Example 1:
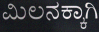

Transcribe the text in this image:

ಮಿಲನಕ್ಕಾಗಿ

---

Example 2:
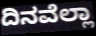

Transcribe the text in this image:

ದಿನವೆಲ್ಲಾ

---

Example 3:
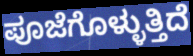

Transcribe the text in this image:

ಪೂಜೆಗೊಳ್ಳುತ್ತಿದೆ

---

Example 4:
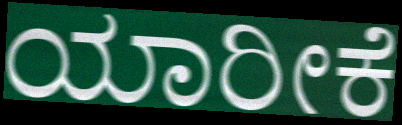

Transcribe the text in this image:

ಯಾರೀಕೆ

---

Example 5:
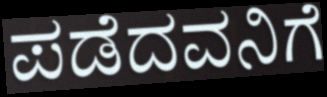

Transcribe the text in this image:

ಪಡೆದವನಿಗೆ